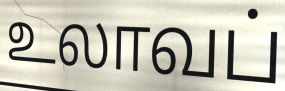
உலாவப்